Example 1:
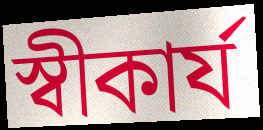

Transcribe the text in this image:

স্বীকার্য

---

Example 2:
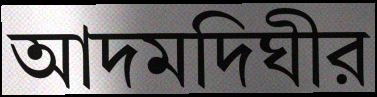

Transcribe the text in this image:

আদমদিঘীর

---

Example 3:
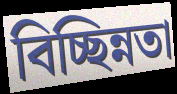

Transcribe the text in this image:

বিচ্ছিন্নতা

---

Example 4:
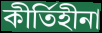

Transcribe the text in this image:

কীর্তিহীনা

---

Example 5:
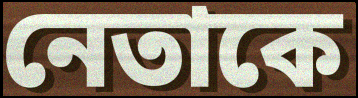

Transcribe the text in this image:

নেতাকে